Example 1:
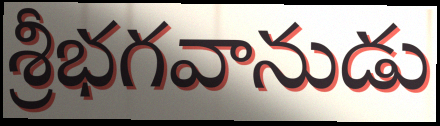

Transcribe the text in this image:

శ్రీభగవానుడు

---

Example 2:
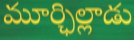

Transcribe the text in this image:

మూర్ఛిల్లాడు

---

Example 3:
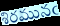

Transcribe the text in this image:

శిరమునఁ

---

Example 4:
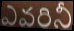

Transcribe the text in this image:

ఎవరినీ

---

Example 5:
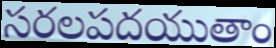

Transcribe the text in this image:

సరలపదయుతాం